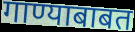
गाण्याबाबत